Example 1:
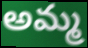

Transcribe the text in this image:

అమ్మ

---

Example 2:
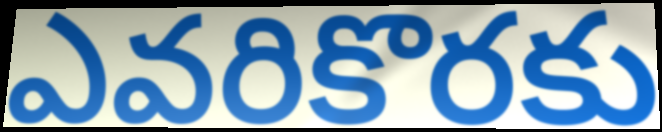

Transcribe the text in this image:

ఎవరికొరకు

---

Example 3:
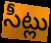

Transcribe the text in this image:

సీట్లు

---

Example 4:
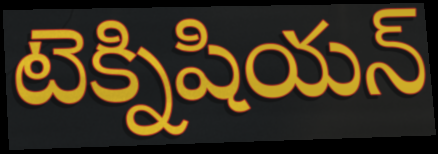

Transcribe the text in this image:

టెక్నిషియన్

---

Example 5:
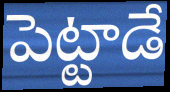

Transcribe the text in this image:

పెట్టాడే